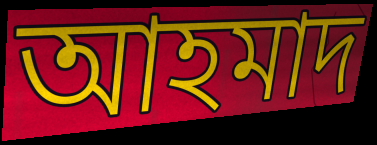
আহমাদ